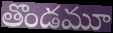
తొండమూ